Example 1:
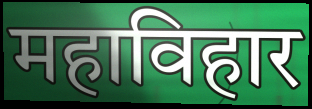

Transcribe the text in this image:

महाविहार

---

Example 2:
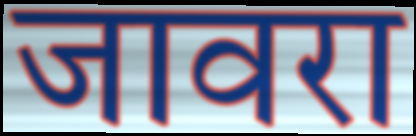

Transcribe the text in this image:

जावरा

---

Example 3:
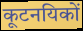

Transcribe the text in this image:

कूटनयिकों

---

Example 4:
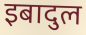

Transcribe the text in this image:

इबादुल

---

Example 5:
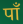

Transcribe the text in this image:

पाँ